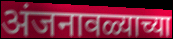
अंजनावळ्याच्या